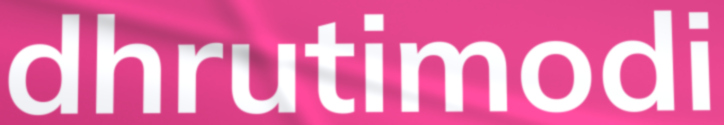
dhrutimodi